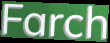
Farch